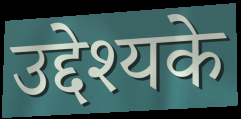
उद्देश्यके